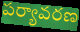
పర్యావరణ